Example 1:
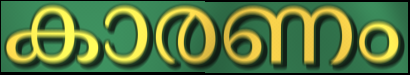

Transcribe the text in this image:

കാരണം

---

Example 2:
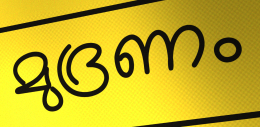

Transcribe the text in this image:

മുദ്രണം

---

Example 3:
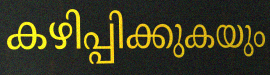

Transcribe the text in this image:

കഴിപ്പിക്കുകയും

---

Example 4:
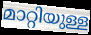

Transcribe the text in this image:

മാറ്റിയുള്ള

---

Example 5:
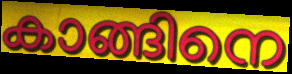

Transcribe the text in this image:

കാങ്ങിനെ